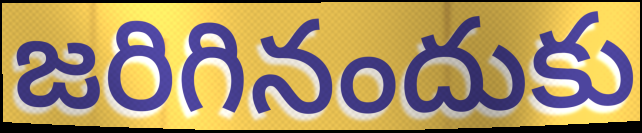
జరిగినందుకు